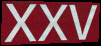
xxv